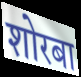
शोरबा